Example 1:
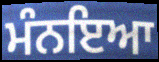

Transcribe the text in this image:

ਮੰਨਇਆ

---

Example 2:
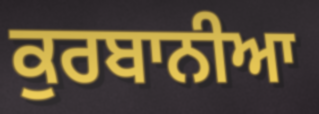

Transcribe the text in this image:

ਕੁਰਬਾਨੀਆ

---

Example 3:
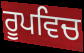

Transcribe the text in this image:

ਰੂਪਵਿਚ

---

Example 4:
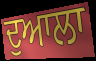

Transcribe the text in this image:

ਦੁਆਲਾ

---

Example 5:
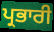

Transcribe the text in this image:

ਪ੍ਰਭਾਰੀ